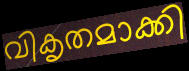
വികൃതമാക്കി